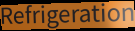
Refrigeration